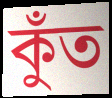
কুঁত